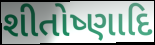
શીતોષ્ણાદિ